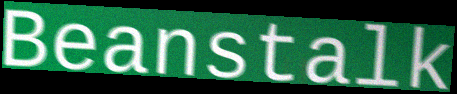
Beanstalk